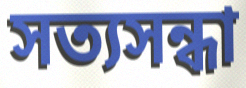
সত্যসন্ধা